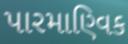
પારમાણ્વિક